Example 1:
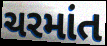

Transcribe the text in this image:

ચરમાંત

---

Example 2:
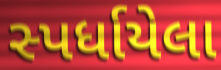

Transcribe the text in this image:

સ્પર્ધાયેલા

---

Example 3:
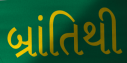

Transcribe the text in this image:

બ્રાંતિથી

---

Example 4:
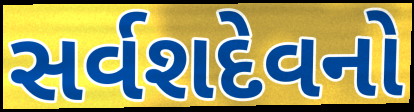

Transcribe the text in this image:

સર્વશદેવનો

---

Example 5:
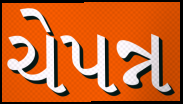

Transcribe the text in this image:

ચેપન્ન